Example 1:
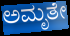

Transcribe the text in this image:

ಅಮೃತೇ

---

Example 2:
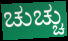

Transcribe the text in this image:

ಚುಚ್ಚು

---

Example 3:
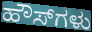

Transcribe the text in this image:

ಹೌಸ್‌ಗಳು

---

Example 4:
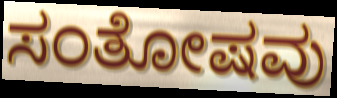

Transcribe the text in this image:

ಸಂತೋಷವು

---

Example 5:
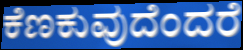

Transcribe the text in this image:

ಕೆಣಕುವುದೆಂದರೆ